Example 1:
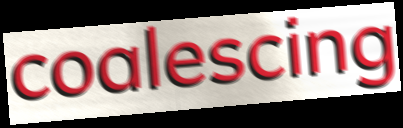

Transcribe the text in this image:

coalescing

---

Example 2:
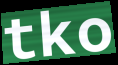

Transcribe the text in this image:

tko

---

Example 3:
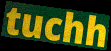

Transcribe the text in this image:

tuchh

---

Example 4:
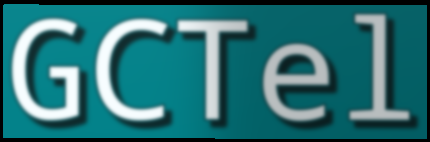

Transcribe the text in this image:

GCTel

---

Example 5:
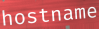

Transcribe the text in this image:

hostname